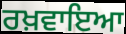
ਰਖ਼ਵਾਇਆ